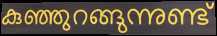
കുഞ്ഞുറങ്ങുന്നുണ്ട്